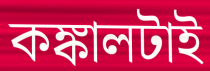
কঙ্কালটাই